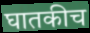
घातकीच